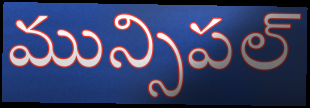
మున్సిపల్